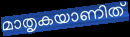
മാതൃകയാണിത്